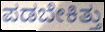
ಪಡಬೇಕಿತ್ತು